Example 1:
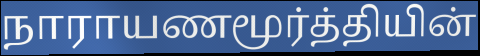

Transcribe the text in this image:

நாராயணமூர்த்தியின்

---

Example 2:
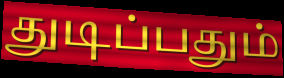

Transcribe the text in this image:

துடிப்பதும்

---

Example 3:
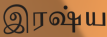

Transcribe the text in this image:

இரஷ்ய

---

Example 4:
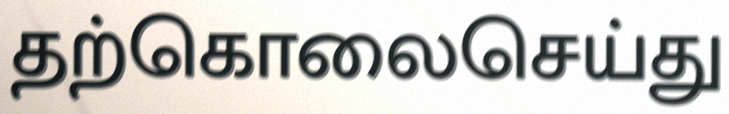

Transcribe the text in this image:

தற்கொலைசெய்து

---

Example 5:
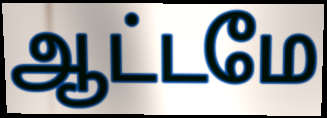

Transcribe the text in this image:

ஆட்டமே